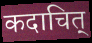
कदाचित्